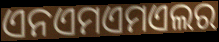
ଏନଏମଏମଏଲର